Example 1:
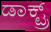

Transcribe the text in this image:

ಡಾಕ್ಟ್ರ್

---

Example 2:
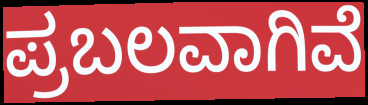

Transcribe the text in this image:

ಪ್ರಬಲವಾಗಿವೆ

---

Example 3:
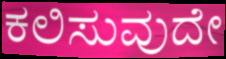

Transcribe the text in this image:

ಕಲಿಸುವುದೇ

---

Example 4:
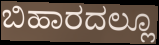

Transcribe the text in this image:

ಬಿಹಾರದಲ್ಲೂ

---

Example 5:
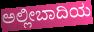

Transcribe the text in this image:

ಅಲ್ಲೀಬಾದಿಯ